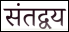
संतद्वय